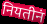
नियतीनं